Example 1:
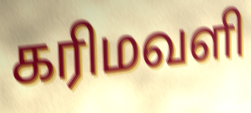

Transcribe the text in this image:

கரிமவளி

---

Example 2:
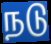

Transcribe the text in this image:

நடு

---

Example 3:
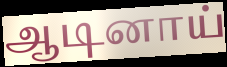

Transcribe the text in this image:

ஆடினாய்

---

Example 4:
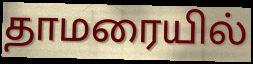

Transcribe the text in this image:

தாமரையில்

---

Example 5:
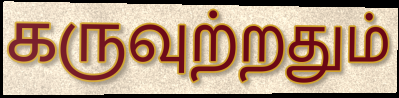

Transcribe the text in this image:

கருவுற்றதும்